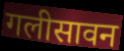
गलीसावन